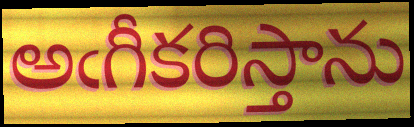
అఁగీకరిస్తాను